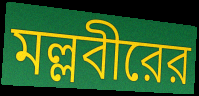
মল্লবীরের